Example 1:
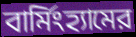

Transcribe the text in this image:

বার্মিংহ্যামের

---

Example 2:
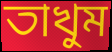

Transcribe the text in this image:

তাখুম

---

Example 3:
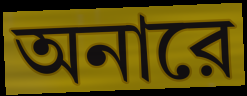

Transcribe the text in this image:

অনারে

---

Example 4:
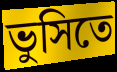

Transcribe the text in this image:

ভুসিতে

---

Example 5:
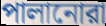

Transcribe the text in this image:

পালানোরা